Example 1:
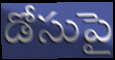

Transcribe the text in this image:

డోసుపై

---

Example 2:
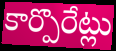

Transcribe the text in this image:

కార్పొరేట్లు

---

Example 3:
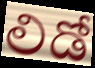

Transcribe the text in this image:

లిడో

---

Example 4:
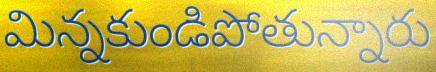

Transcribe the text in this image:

మిన్నకుండిపోతున్నారు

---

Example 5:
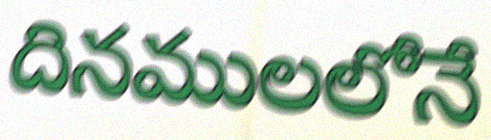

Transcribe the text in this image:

దినములలోనే